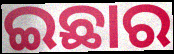
ଇଛାର